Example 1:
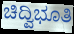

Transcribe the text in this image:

ಚಿದ್ವಿಭೂತಿ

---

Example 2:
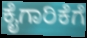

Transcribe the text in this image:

ಕೈಗಾರಿಕೆಗೆ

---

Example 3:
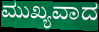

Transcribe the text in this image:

ಮುಖ್ಯವಾದ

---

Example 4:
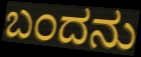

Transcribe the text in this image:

ಬಂದನು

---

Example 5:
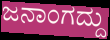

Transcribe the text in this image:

ಜನಾಂಗದ್ದು